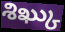
శిఖ్కు